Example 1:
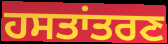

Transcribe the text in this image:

ਹਸਤਾਂਤਰਣ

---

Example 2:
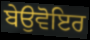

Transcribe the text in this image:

ਬੇਉਵੋਇਰ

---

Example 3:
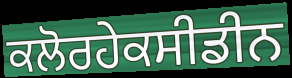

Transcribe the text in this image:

ਕਲੋਰਹੇਕਸੀਡੀਨ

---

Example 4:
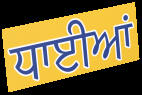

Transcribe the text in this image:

ਧਾਈਆਂ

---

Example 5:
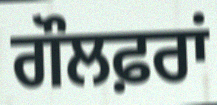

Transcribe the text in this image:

ਗੌਲਫ਼ਰਾਂ